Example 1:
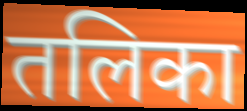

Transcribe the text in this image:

तलिका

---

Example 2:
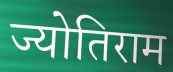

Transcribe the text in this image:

ज्योतिराम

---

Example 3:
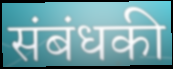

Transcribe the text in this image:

संबंधकी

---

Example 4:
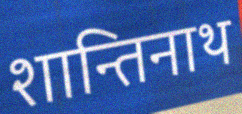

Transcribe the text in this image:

शान्तिनाथ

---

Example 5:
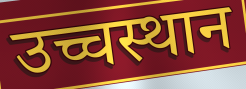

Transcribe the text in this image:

उच्चस्थान